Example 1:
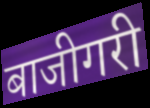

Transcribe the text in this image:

बाजीगरी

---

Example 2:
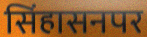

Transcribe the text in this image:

सिंहासनपर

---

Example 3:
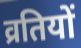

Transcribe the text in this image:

व्रतियों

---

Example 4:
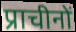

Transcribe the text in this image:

प्राचीनों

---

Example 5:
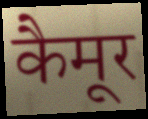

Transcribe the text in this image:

कैमूर